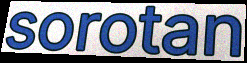
sorotan